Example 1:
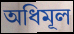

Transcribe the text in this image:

অধিমূল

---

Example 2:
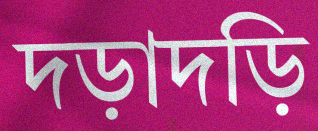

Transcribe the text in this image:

দড়াদড়ি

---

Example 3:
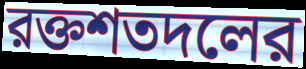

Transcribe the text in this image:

রক্তশতদলের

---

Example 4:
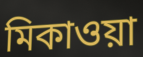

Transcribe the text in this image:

মিকাওয়া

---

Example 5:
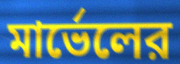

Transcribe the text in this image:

মার্ভেলের